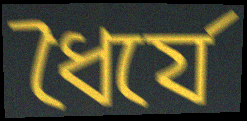
ধৈর্যে